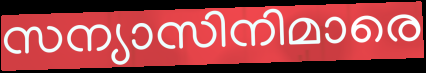
സന്യാസിനിമാരെ